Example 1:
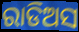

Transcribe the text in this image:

ରାଡିଅସ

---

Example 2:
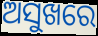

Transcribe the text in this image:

ଅସୁଖରେ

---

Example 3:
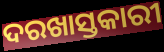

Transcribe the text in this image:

ଦରଖାସ୍ତକାରୀ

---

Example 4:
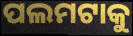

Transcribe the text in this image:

ପଲମଟାକୁ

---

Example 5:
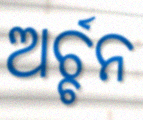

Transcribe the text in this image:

ଅର୍ଚ୍ଚନ